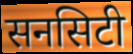
सनसिटी